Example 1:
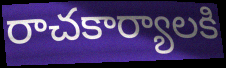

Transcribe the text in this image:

రాచకార్యాలకి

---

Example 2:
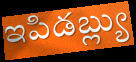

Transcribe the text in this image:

ఇపిడబ్ల్యు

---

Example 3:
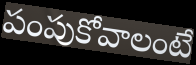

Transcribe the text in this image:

పంపుకోవాలంటే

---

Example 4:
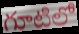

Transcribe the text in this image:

గూటిలో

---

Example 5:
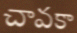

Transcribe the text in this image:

చావకా